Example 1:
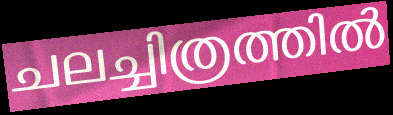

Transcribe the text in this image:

ചലച്ചിത്രത്തിൽ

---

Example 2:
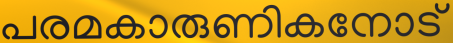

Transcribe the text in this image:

പരമകാരുണികനോട്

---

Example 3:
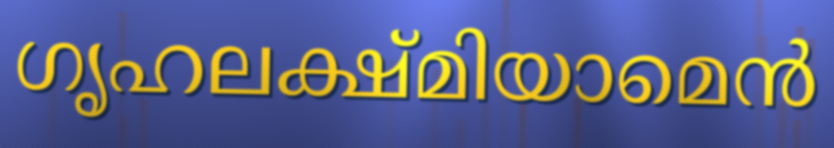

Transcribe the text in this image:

ഗൃഹലക്ഷ്മിയാമെൻ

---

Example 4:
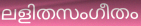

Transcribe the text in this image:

ലളിതസംഗീതം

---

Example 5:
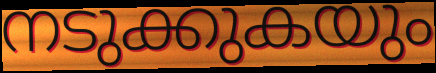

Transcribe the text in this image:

നടുക്കുകയും